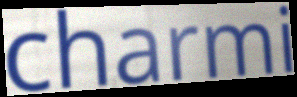
charmi